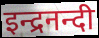
इन्द्रनन्दी